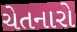
ચેતનારો